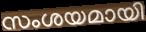
സംശയമായി